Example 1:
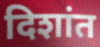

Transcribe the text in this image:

दिशांत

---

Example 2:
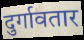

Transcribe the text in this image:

दुर्गावतार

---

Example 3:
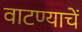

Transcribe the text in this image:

वाटण्याचें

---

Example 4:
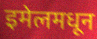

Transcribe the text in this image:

इमेलमधून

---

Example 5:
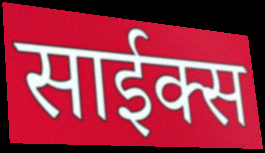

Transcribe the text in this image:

साईक्स